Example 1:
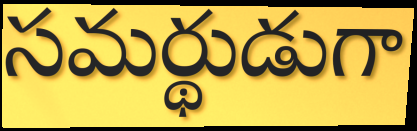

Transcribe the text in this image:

సమర్థుడుగా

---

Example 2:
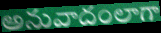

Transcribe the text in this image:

అనువాదంలాగా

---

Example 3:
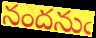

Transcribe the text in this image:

నందనుఁ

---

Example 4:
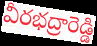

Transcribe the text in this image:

వీరభద్రారెడ్డి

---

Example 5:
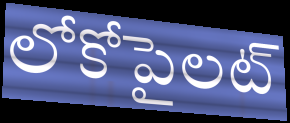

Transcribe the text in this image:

లోకోపైలట్